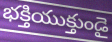
భక్తియుక్తుండై